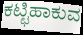
ಕಟ್ಟಿಹಾಕುವ